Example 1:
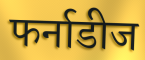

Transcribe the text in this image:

फर्नाडीज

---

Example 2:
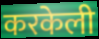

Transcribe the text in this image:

करकेली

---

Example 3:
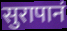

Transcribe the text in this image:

सुरापानं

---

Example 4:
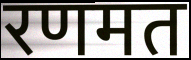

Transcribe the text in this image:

रणमत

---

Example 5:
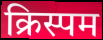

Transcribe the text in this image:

क्रिस्पम